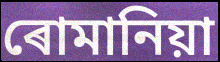
ৰোমানিয়া